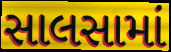
સાલસામાં